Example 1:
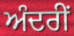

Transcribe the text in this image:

ਅੰਦਰੀਂ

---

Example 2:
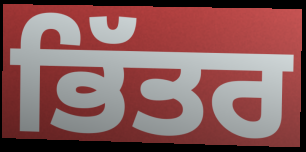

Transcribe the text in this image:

ਭਿੱਤਰ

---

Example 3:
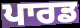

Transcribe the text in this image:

ਪਾਰਡ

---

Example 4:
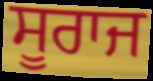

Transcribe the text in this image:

ਸੂਰਾਜ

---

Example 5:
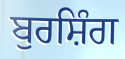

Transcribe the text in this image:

ਬੁਰਸ਼ਿੰਗ